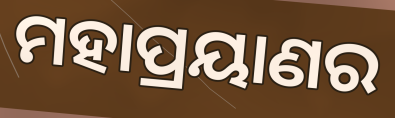
ମହାପ୍ରୟାଣର